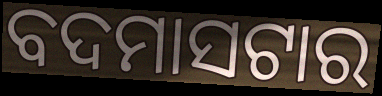
ବଦମାସଟାର